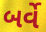
બર્વે